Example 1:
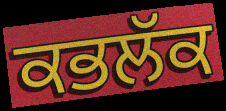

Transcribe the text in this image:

ਕਭਲੱਕ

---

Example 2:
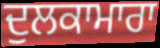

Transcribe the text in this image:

ਦੁਲਕਾਮਾਰਾ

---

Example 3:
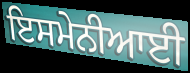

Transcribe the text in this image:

ਇਸਮੇਨੀਆਈ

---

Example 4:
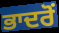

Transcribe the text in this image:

ਭਾਦਰੋਂ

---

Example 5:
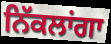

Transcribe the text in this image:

ਨਿੱਕਲਾਂਗਾ